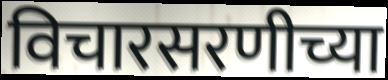
विचारसरणीच्या